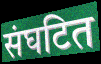
संघटित